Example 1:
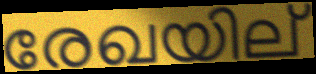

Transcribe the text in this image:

രേഖയില്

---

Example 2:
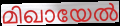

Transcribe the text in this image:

മിഖായേൽ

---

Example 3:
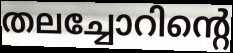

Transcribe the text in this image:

തലച്ചോറിന്റെ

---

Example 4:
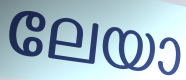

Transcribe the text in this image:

ലേയാ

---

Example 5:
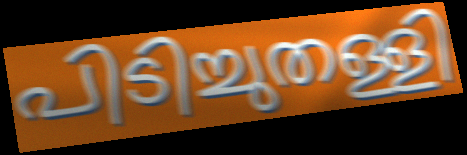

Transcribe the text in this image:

പിടിച്ചുതള്ളി